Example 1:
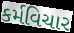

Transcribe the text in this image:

કર્મવિચાર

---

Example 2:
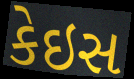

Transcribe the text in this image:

કેઇસ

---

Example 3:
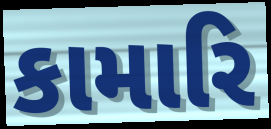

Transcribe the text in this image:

કામારિ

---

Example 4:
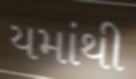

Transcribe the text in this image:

યમાંથી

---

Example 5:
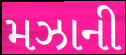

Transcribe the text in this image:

મઝાની